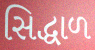
સિદ્ધાળ